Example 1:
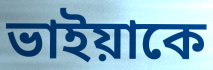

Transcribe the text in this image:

ভাইয়াকে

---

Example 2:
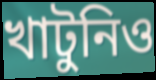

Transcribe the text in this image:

খাটুনিও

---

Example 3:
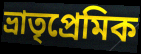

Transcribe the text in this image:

ভ্রাতৃপ্রেমিক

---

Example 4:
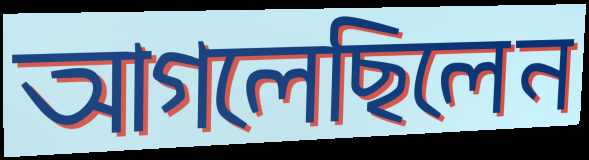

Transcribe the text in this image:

আগলেছিলেন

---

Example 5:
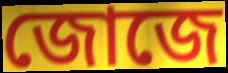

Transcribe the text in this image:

জোজে